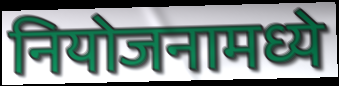
नियोजनामध्ये